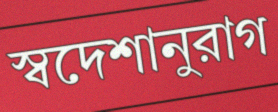
স্বদেশানুরাগ